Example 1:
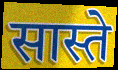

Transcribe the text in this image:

सास्ते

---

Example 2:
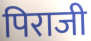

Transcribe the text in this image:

पिराजी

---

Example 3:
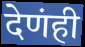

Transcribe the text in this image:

देणंही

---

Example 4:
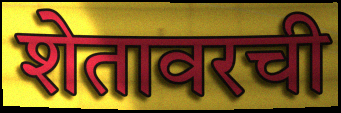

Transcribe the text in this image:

शेतावरची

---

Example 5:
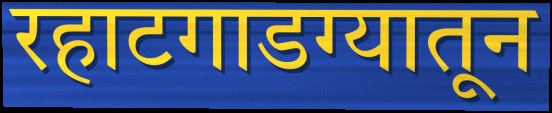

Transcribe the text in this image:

रहाटगाडग्यातून